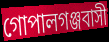
গোপালগঞ্জবাসী